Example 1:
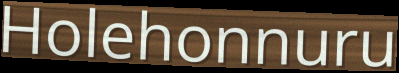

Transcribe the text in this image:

Holehonnuru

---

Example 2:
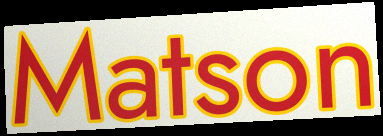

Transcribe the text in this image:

Matson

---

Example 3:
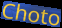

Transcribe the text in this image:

Choto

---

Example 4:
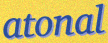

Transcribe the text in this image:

atonal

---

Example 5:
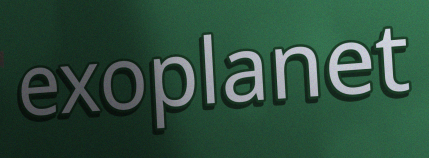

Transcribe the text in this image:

exoplanet